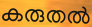
കരുതൽ